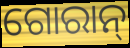
ଗୋରାନ୍